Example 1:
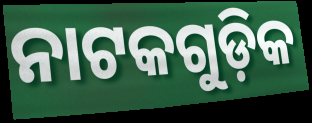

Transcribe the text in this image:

ନାଟକଗୁଡ଼ିକ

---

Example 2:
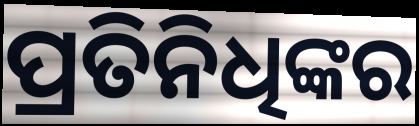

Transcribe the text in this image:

ପ୍ରତିନିଧିଙ୍କର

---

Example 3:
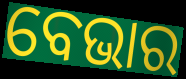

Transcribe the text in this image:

ବେଭାର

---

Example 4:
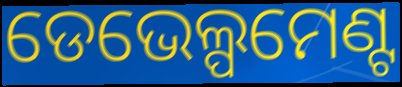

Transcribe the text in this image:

ଡେଭେଲ୍ପମେଣ୍ଟ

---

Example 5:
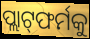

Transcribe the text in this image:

ପ୍ଲାଟ୍‌ଫର୍ମକୁ